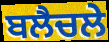
ਬਲੈਚਲੇ